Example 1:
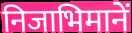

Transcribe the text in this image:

निजाभिमानें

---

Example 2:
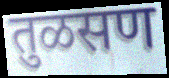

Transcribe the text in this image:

तुळसण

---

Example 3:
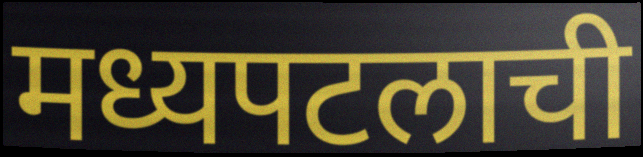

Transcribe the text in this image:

मध्यपटलाची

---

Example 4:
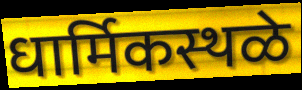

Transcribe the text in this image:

धार्मिकस्थळे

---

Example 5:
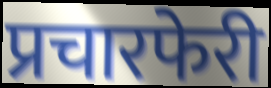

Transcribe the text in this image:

प्रचारफेरी